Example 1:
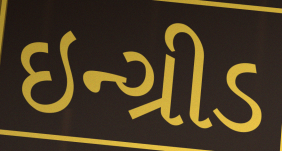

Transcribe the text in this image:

ઇન્ગ્રીડ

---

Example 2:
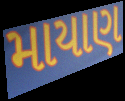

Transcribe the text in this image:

માયાણ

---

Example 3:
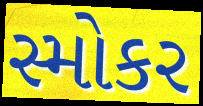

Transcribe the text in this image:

સ્મોકર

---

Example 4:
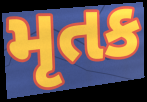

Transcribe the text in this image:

મૃતક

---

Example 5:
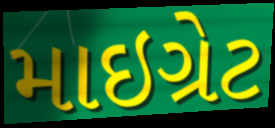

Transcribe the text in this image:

માઇગ્રેટ